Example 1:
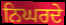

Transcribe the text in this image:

ਨਿਘਰਦੇ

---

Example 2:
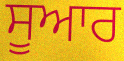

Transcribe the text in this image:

ਸੂਆਰ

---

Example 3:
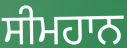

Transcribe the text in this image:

ਸੀਮਹਾਨ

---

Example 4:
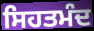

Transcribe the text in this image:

ਸਿਹਤਮੰਦ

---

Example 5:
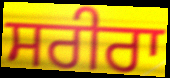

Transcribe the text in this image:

ਸਰੀਰਾ